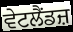
ਵੇਟਲੈਂਡਜ਼